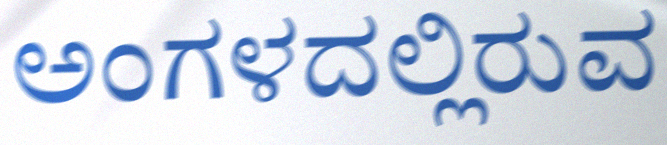
ಅಂಗಳದಲ್ಲಿರುವ